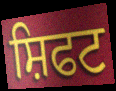
ਸ਼ਿਫਟ